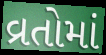
વ્રતોમાં